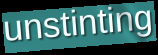
unstinting